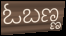
ಓಬಣ್ಣ